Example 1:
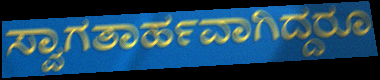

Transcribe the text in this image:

ಸ್ವಾಗತಾರ್ಹವಾಗಿದ್ದರೂ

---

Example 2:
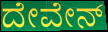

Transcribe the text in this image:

ದೇವೇನ್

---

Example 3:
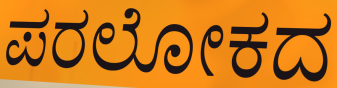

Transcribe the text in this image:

ಪರಲೋಕದ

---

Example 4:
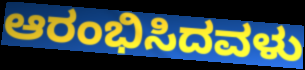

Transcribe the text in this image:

ಆರಂಭಿಸಿದವಳು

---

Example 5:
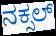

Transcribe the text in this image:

ನಕ್ಸಲ್